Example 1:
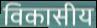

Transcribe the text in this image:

विकासीय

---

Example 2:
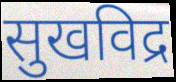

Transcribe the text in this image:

सुखविद्र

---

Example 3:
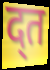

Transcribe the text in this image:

द्त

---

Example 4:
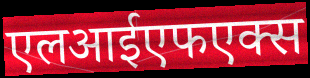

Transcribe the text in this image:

एलआईएफएक्स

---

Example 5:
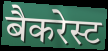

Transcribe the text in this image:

बैकरेस्ट